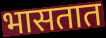
भासतात